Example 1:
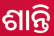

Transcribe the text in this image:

ଶାନ୍ତି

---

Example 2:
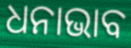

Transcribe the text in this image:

ଧନାଭାବ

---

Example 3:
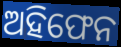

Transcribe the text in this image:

ଅହିଫେନ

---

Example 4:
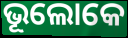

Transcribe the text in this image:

ଭୂଲୋକେ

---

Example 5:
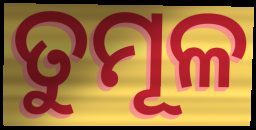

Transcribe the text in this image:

ତୁମୂଳ